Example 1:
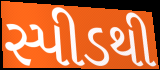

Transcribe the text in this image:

સ્પીડથી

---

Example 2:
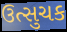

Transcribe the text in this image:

ઉત્સુચક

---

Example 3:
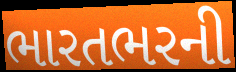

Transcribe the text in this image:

ભારતભરની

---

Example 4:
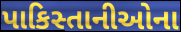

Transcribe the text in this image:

પાકિસ્તાનીઓના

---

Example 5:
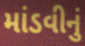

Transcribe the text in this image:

માંડવીનું